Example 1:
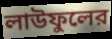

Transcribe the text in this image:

লাউফুলের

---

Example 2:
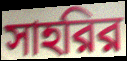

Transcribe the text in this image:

সাহরির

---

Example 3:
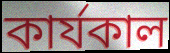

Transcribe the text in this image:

কার্যকাল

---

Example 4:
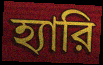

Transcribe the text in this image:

হ্যারি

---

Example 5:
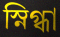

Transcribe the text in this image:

স্নিগ্ধা